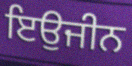
ਇਉਜੀਨ